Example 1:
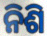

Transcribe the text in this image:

ନିଶି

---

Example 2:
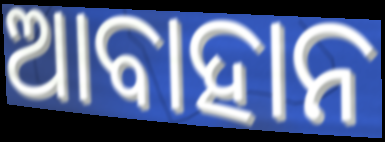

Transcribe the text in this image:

ଆବାହାନ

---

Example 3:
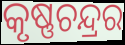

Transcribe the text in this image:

କୃଷ୍ଣଚନ୍ଦ୍ରର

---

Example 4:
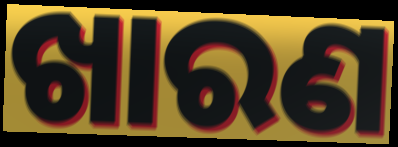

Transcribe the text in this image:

ଖାରଣ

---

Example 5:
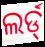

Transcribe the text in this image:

ଲର୍ଡ୍